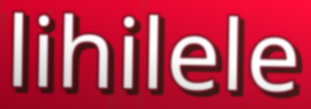
lihilele